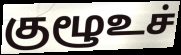
குழூஉச்